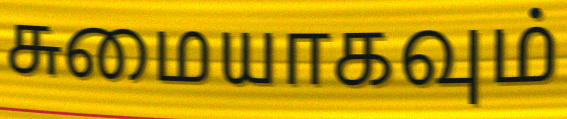
சுமையாகவும்